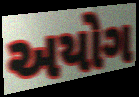
અયોગ